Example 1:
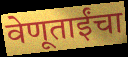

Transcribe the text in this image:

वेणूताईंचा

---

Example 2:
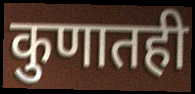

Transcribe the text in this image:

कुणातही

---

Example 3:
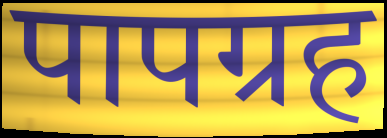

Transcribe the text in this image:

पापग्रह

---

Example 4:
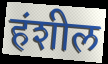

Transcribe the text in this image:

हंशील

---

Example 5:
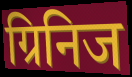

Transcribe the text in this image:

ग्रिनिज